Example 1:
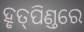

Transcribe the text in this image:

ହୃତ୍‌ପିଣ୍ଡରେ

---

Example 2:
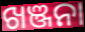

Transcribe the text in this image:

ଖଞ୍ଜନା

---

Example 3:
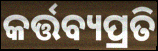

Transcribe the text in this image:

କର୍ତ୍ତବ୍ୟପ୍ରତି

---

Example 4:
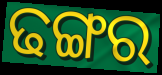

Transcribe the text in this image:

ଢଙ୍ଗର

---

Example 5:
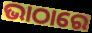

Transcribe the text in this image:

ଭାଠାରେ